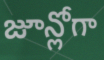
జూన్లోగా